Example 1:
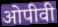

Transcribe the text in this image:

ओपीवी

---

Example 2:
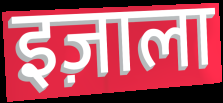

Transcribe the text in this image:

इज़ाला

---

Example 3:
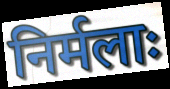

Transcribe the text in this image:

निर्मलाः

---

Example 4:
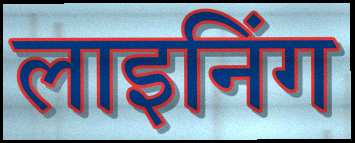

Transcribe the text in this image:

लाइनिंग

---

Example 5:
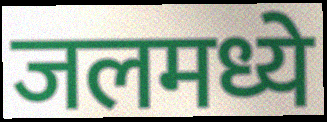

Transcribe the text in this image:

जलमध्ये